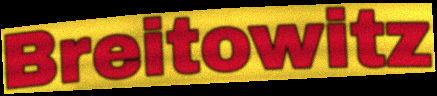
Breitowitz